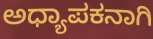
ಅಧ್ಯಾಪಕನಾಗಿ